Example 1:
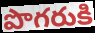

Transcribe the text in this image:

పొగరుకి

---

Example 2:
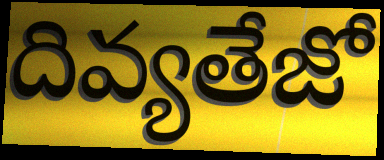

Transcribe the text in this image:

దివ్యతేజో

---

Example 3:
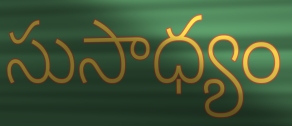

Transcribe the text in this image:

సుసాధ్యం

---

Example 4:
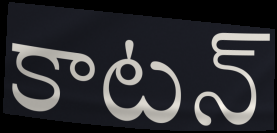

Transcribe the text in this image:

కాటన్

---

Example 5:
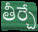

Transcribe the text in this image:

తీర్చే